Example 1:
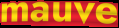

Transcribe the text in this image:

mauve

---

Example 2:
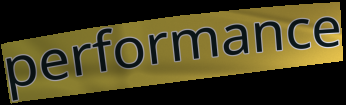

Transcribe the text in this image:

performance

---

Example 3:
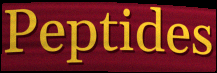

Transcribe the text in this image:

Peptides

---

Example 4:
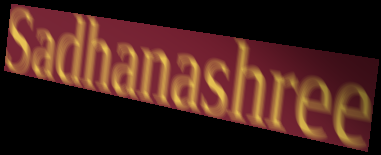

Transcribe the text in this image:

Sadhanashree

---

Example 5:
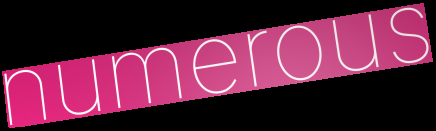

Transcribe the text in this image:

numerous